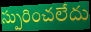
స్పురించలేదు